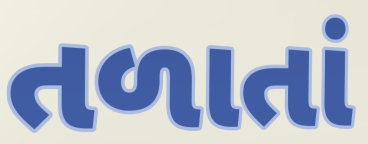
તળાતાં